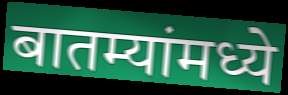
बातम्यांमध्ये